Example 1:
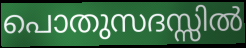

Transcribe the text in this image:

പൊതുസദസ്സിൽ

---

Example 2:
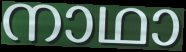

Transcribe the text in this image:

നാഥാ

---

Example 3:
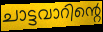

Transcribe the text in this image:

ചാട്ടവാറിന്റെ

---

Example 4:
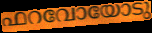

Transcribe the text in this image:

ഫറവോയോടു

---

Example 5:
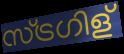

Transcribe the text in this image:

സ്ട്രഗിള്